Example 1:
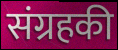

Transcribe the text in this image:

संग्रहकी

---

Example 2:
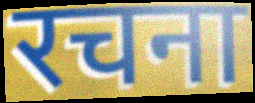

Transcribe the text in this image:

रचना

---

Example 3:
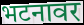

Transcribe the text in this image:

भटनावर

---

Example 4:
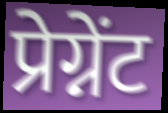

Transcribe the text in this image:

प्रेग्नेंट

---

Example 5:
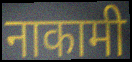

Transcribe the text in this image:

नाकामी